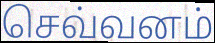
செவ்வனம்